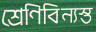
শ্রেণিবিন্যস্ত